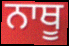
ਨਾਥੂ